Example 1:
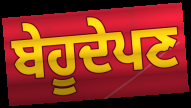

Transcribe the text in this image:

ਬੇਹੂਦੇਪਣ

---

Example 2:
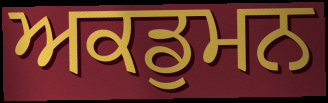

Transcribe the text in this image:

ਅਕਡੁਮਨ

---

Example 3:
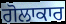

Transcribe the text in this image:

ਗੋਲਾਕਾਰ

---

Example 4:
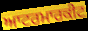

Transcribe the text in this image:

ਆਟਰਮਾਰਕੀਟ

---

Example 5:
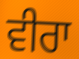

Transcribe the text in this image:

ਵੀਰਾ